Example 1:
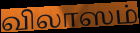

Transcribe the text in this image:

விலாஸம்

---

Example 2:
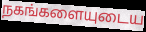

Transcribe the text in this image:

நகங்களையுடைய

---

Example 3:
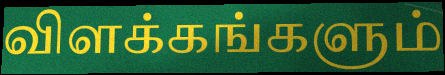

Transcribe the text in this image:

விளக்கங்களும்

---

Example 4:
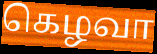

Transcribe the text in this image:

கெழவா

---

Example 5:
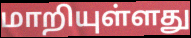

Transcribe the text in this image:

மாறியுள்ளது